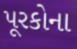
પૂરકોના